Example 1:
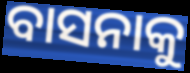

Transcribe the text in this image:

ବାସନାକୁ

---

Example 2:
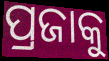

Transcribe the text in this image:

ପ୍ରଜାକୁ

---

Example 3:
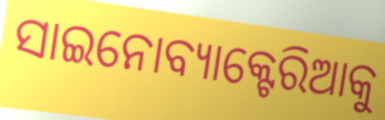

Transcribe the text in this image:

ସାଇନୋବ୍ୟାକ୍ଟେରିଆକୁ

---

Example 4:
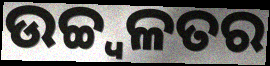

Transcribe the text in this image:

ଉଚ୍ଚ୍ୱଳତର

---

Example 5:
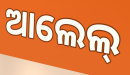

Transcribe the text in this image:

ଆଲେଲ୍